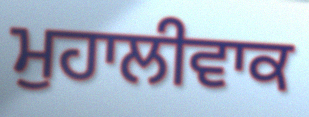
ਮੁਹਾਲੀਵਾਕ